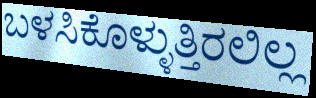
ಬಳಸಿಕೊಳ್ಳುತ್ತಿರಲಿಲ್ಲ